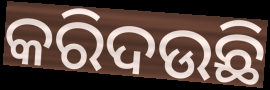
କରିଦଉଛି